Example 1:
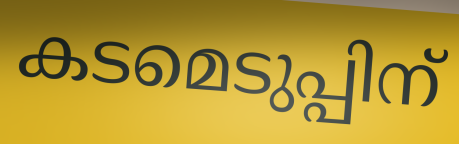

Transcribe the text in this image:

കടമെടുപ്പിന്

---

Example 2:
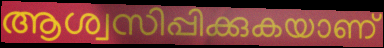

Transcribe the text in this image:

ആശ്വസിപ്പിക്കുകയാണ്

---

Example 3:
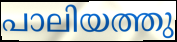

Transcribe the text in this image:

പാലിയത്തു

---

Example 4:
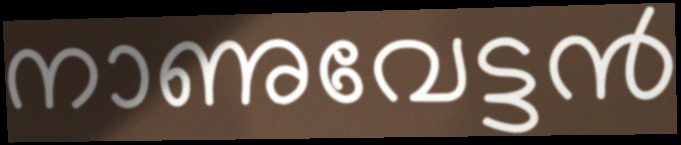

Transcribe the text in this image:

നാണുവേട്ടൻ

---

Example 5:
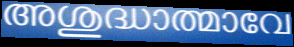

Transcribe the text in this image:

അശുദ്ധാത്മാവേ